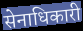
सेनाधिकारी